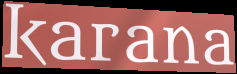
karana